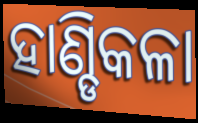
ହାଣ୍ଡିକଳା